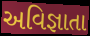
અવિજ્ઞાતા